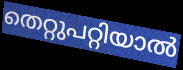
തെറ്റുപറ്റിയാൽ